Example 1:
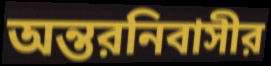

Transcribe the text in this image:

অন্তরনিবাসীর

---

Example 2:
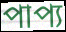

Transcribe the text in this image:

পাপ্য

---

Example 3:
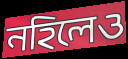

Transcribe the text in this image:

নহিলেও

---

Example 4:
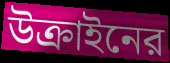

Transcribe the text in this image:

উক্রাইনের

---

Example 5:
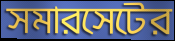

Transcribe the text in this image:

সমারসেটের